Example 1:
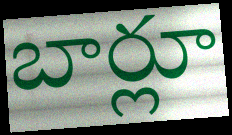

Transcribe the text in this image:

బార్లూ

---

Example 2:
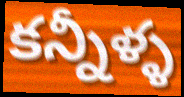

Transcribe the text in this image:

కన్నీళ్ళ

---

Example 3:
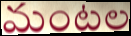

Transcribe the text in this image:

మంటల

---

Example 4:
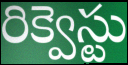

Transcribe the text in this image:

రిక్వెస్టు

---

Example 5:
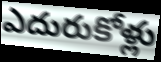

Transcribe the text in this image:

ఎదురుకోళ్లు